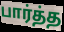
பார்த்த